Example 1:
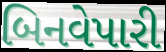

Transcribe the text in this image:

બિનવેપારી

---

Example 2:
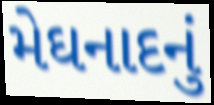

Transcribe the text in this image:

મેઘનાદનું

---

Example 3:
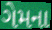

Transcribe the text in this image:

ગેમના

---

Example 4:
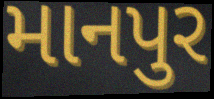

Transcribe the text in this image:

માનપુર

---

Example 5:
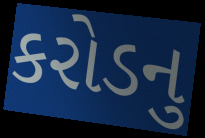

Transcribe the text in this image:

કરોડનુ